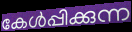
കേൾപ്പിക്കുന്ന